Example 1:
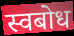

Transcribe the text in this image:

स्वबोध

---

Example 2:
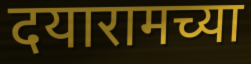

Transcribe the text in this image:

दयारामच्या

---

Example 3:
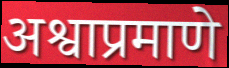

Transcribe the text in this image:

अश्वाप्रमाणे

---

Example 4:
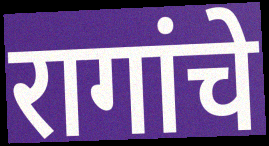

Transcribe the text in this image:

रागांचे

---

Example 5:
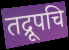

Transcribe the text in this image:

तद्रूपचि